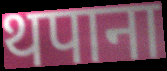
थपाना